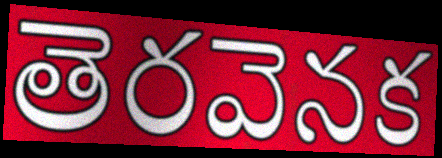
తెరవెనక